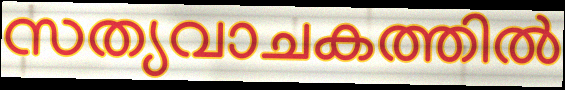
സത്യവാചകത്തിൽ